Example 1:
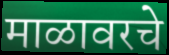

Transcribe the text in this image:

माळावरचे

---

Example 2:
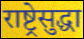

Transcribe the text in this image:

राष्ट्रेसुद्धा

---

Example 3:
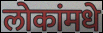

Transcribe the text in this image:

लोकांमधे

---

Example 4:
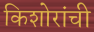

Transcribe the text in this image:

किशोरांची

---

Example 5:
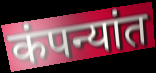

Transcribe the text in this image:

कंपन्यांत